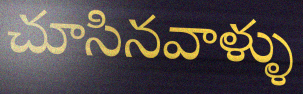
చూసినవాళ్ళు